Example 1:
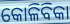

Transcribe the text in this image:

କୋଳିବିକା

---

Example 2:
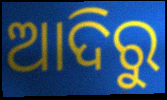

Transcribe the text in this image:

ଆଦିରୁ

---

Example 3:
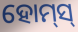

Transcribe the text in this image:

ହୋମ୍‌ସ୍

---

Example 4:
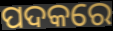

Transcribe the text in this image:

ପଦକରେ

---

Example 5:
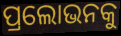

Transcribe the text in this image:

ପ୍ରଲୋଭନକୁ